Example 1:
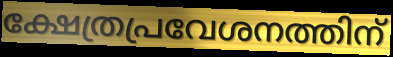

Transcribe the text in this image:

ക്ഷേത്രപ്രവേശനത്തിന്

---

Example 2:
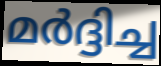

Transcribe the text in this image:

മർദ്ദിച്ച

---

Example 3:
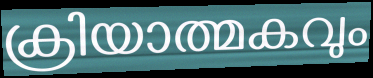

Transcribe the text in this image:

ക്രിയാത്മകവും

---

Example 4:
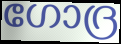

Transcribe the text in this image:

ഗോദ്ര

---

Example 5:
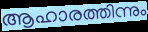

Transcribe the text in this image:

ആഹാരത്തിന്നും